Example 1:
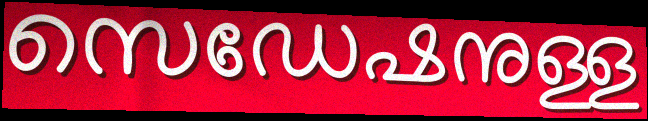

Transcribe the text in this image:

സെഡേഷനുള്ള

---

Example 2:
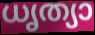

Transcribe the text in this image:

ധൃത്യാ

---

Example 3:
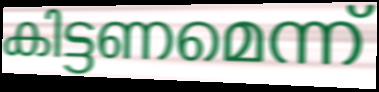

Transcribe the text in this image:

കിട്ടണമെന്ന്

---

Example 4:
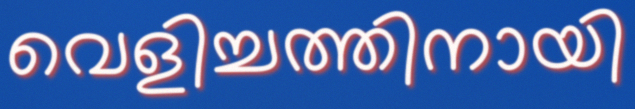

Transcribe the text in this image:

വെളിച്ചത്തിനായി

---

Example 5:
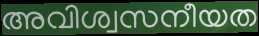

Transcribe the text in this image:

അവിശ്വസനീയത